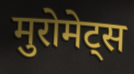
मुरोमेट्स